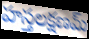
హస్తలక్షణమ్